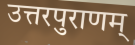
उत्तरपुराणम्